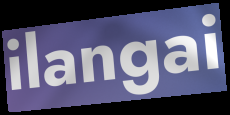
ilangai